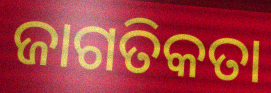
ଜାଗତିକତା